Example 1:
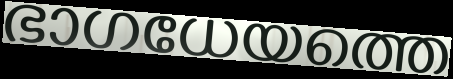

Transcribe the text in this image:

ഭാഗധേയത്തെ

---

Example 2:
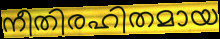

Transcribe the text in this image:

നീതിരഹിതമായ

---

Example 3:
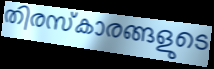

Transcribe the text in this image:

തിരസ്കാരങ്ങളുടെ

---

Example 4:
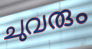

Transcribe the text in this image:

ചുവരും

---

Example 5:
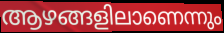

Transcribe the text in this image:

ആഴങ്ങളിലാണെന്നും